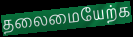
தலைமையேற்க